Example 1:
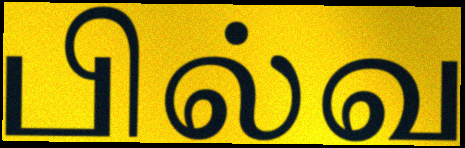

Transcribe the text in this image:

பில்வ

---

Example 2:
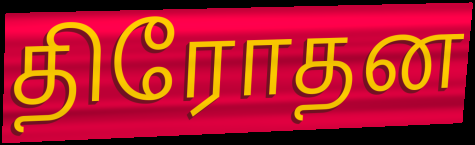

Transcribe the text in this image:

திரோதன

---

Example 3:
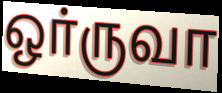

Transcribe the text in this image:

ஒர்ருவா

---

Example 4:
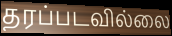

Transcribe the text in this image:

தரப்படவில்லை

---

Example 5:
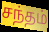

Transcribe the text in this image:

சந்தம்